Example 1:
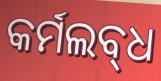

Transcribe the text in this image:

କର୍ମଲବ୍‌ଧ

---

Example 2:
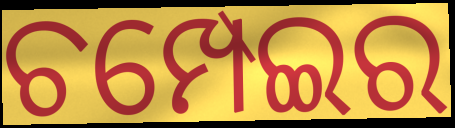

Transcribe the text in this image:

ଚମ୍ପେଇର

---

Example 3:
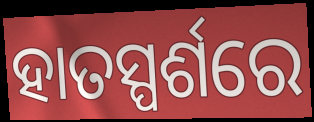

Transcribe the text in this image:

ହାତସ୍ପର୍ଶରେ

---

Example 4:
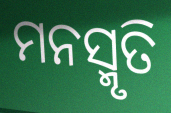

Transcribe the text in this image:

ମନସ୍ମୃତି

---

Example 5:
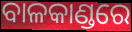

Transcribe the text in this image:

ବାଳକାଣ୍ଡରେ